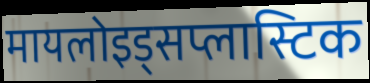
मायलोइड्सप्लास्टिक